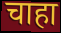
चाहा